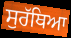
ਸੁਰੱਥਿਆ